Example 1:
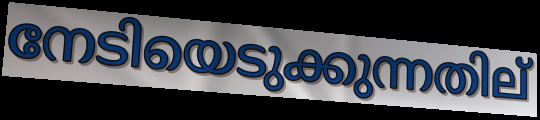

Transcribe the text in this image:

നേടിയെടുക്കുന്നതില്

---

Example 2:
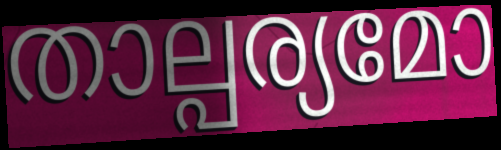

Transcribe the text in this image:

താല്പര്യമോ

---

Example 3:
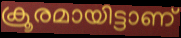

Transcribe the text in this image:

ക്രൂരമായിട്ടാണ്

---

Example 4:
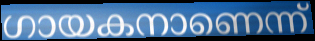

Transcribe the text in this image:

ഗായകനാണെന്ന്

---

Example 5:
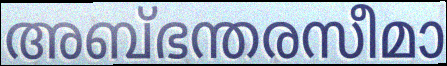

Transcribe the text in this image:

അബ്ഭന്തരസീമാ